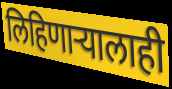
लिहिणाऱ्यालाही